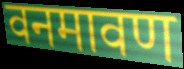
वनमावण